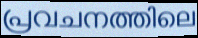
പ്രവചനത്തിലെ